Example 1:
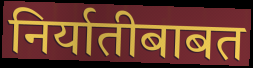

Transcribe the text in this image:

निर्यातीबाबत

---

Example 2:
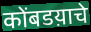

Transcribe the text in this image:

कोंबडय़ाचे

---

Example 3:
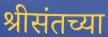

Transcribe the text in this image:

श्रीसंतच्या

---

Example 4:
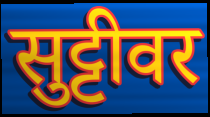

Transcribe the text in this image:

सुट्टीवर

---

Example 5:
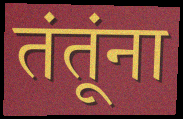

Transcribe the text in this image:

तंतूंना